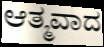
ಆತ್ಮವಾದ